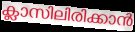
ക്ലാസിലിരിക്കാൻ